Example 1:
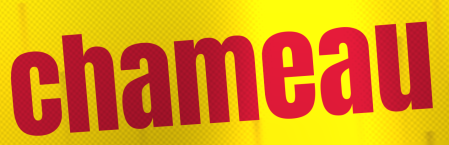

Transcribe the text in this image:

chameau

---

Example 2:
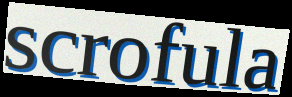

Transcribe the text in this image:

scrofula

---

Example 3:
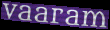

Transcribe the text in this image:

vaaram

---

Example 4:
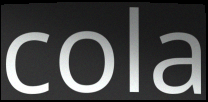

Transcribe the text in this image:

cola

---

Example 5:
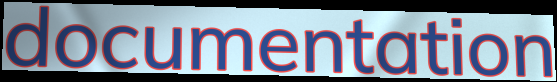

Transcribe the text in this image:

documentation